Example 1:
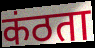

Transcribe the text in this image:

कंठता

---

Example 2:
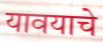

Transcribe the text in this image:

यावयाचे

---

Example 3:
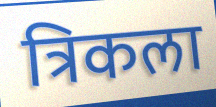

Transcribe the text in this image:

त्रिकला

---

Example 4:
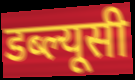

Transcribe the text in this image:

डब्ल्यूसी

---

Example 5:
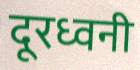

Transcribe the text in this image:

दूरध्वनी